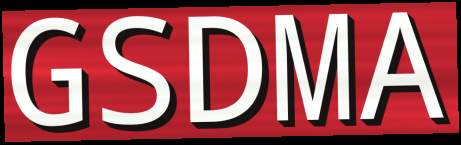
GSDMA